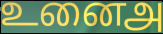
உனைஅ